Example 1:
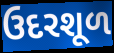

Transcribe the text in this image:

ઉદરશૂળ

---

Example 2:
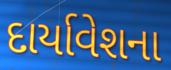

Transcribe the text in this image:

દાર્યાવેશના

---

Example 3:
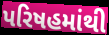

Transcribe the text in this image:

પરિષહમાંથી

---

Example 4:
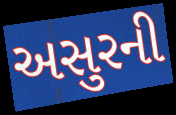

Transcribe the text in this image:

અસુરની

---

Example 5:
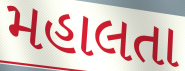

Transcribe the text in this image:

મહાલતા